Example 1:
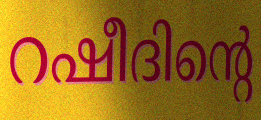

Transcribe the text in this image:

റഷീദിന്റെ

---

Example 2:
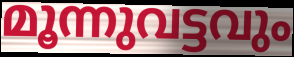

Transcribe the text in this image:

മൂന്നുവട്ടവും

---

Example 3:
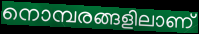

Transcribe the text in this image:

നൊമ്പരങ്ങളിലാണ്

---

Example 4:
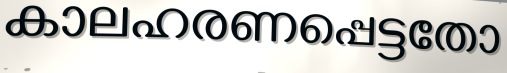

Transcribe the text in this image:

കാലഹരണപ്പെട്ടതോ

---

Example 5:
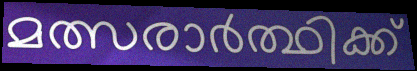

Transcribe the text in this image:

മത്സരാർത്ഥിക്ക്